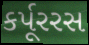
કર્પૂરરસ